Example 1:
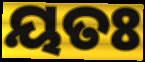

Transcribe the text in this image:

ୟତଃ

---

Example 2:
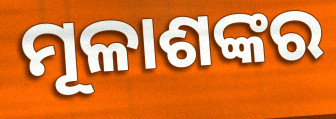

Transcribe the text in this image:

ମୂଳାଶଙ୍କର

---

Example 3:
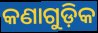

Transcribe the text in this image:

କଣାଗୁଡ଼ିକ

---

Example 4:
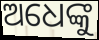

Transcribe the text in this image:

ଅଧେଙ୍କୁ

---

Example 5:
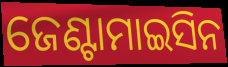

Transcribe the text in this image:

ଜେଣ୍ଟାମାଇସିନ